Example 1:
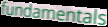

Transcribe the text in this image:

fundamentals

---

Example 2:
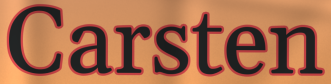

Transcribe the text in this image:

Carsten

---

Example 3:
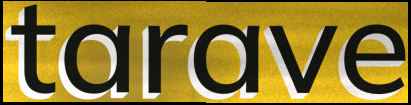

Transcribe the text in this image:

tarave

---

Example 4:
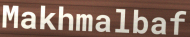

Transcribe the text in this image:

Makhmalbaf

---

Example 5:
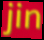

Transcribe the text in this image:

jin